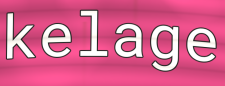
kelage